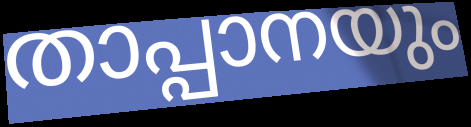
താപ്പാനയും